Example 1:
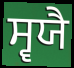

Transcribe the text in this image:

ਸ੍ਵਯੈ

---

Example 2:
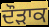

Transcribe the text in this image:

ਦੌੜਾਕ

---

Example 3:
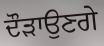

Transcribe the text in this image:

ਦੌੜਾਉਣਗੇ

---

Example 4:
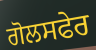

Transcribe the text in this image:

ਗੋਲਸਫੇਰ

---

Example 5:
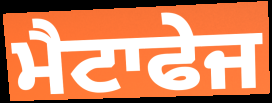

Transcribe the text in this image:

ਮੈਟਾਫੇਜ